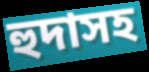
হুদাসহ